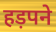
हड़पने